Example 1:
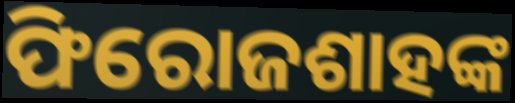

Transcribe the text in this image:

ଫିରୋଜଶାହଙ୍କ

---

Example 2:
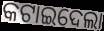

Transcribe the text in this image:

କଟାଇଦେଲା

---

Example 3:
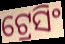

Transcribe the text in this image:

ଟ୍ରେସିଂ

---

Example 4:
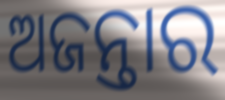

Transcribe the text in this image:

ଅଜନ୍ତାର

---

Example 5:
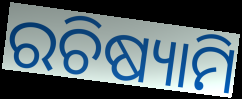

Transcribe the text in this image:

ରଚିଷ୍ୟାମି